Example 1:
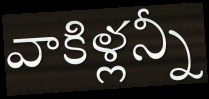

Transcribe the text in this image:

వాకిళ్లన్నీ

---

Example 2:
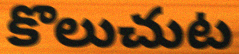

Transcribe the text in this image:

కొలుచుట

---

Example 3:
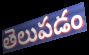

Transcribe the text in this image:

తెలుపడం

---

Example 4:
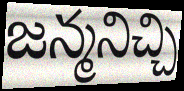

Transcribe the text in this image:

జన్మనిచ్చి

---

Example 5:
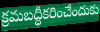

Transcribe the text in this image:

క్రమబద్ధీకరించేందుకు